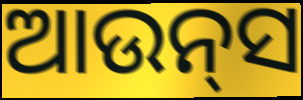
ଆଉନ୍‍ସ